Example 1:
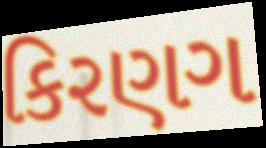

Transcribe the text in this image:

કિરણગ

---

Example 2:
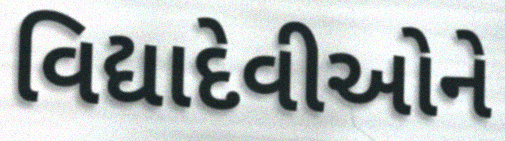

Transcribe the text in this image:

વિદ્યાદેવીઓને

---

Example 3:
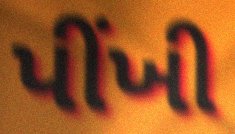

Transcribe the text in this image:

પીંખી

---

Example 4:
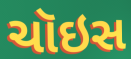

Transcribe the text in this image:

ચૉઇસ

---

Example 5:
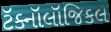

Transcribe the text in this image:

ટૅક્નૉલૉજિકલ